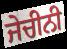
ਜੇਚੀਨੀ